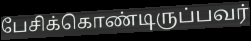
பேசிக்கொண்டிருப்பவர்